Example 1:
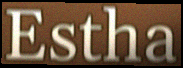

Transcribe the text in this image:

Estha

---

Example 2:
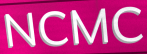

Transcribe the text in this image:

NCMC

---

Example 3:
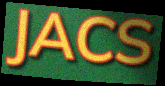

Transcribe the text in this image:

JACS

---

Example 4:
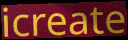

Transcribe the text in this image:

icreate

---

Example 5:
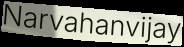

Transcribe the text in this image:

Narvahanvijay